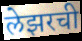
लेझरची